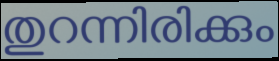
തുറന്നിരിക്കും